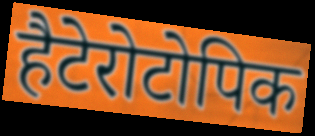
हैटेरोटोपिक